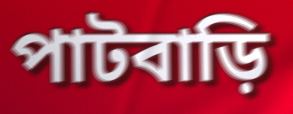
পাটবাড়ি